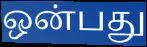
ஒன்பது